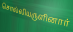
சொல்லியருளினார்